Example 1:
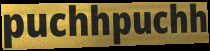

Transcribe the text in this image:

puchhpuchh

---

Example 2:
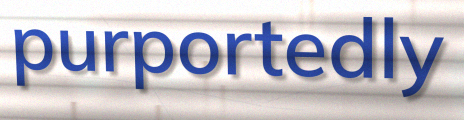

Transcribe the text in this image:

purportedly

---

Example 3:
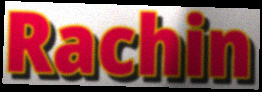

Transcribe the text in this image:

Rachin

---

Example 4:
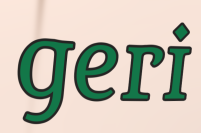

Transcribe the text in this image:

geri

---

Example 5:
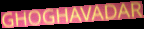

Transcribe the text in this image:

GHOGHAVADAR